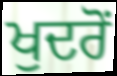
ਖੁਦਰੋਂ